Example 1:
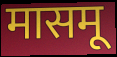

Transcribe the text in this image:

मासमू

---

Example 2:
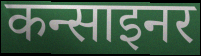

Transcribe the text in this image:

कन्साइनर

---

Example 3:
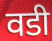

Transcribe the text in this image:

वडी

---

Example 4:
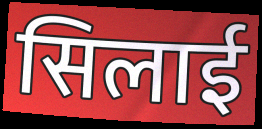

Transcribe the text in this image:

सिलाई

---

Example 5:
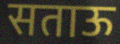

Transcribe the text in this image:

सताऊ